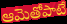
ఆమెతోపాటే